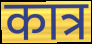
कात्र